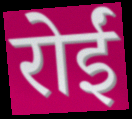
रोईं